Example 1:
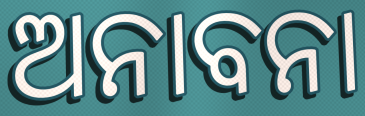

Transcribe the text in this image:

ଅନାବନା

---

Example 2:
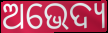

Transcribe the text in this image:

ଅଭେଦ୍ୟ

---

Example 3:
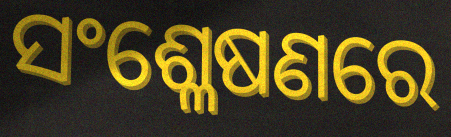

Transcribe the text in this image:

ସଂଶ୍ଳେଷଣରେ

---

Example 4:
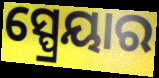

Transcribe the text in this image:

ସ୍ପ୍ରେୟାର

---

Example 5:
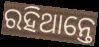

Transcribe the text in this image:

ରହିଥାନ୍ତେ